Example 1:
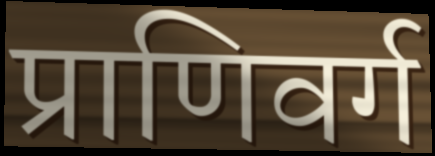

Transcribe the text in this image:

प्राणिवर्ग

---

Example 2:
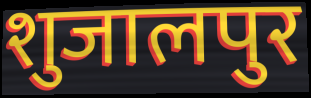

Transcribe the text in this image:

शुजालपुर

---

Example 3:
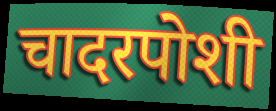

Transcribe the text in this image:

चादरपोशी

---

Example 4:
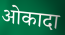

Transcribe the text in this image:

ओकादा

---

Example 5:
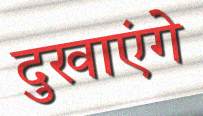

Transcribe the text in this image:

दुखाएंगे